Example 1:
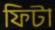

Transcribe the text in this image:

ফিটা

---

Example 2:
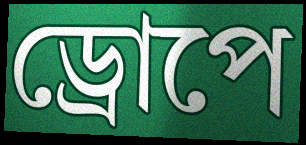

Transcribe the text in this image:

ড্ৰোপে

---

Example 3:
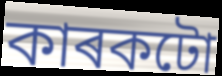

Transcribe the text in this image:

কাৰকটো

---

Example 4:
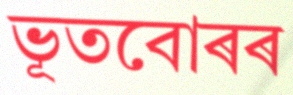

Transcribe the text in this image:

ভূতবোৰৰ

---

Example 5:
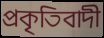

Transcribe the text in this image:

প্ৰকৃতিবাদী